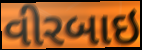
વીરબાઇ